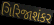
ગિરિજાશંકર